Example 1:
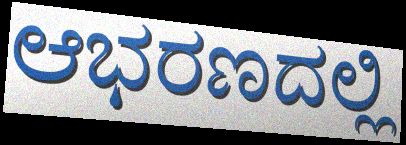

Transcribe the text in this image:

ಆಭರಣದಲ್ಲಿ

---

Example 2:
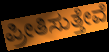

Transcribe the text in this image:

ಪ್ರೀತಿಸುತ್ತೇವೆ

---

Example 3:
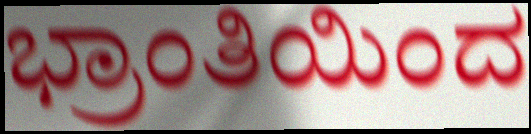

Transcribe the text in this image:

ಭ್ರಾಂತಿಯಿಂದ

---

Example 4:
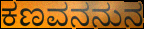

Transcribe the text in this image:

ಕಣವನನುನ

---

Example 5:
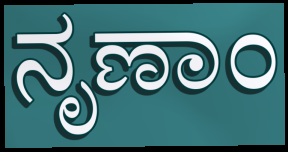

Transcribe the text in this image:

ನೃಣಾಂ